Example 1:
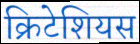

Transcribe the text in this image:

क्रिटेशियस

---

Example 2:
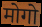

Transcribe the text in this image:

मोगो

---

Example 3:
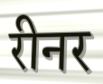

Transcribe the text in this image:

रीनर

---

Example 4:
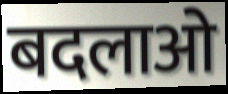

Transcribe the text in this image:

बदलाओ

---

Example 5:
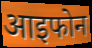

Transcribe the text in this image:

आइफोन